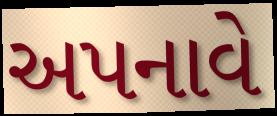
અપનાવે